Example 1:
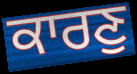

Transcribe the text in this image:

ਕਾਰਣੁ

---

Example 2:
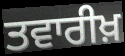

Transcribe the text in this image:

ਤਵਾਰੀਖ਼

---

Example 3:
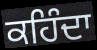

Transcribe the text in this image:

ਕਹਿੰਦਾ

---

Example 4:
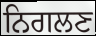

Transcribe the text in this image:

ਨਿਗਲਣ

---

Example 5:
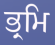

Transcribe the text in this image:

ਭ੍ਰਮਿ